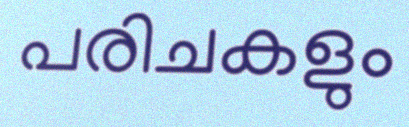
പരിചകളും